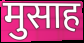
मुसाह